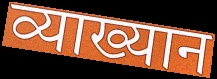
व्याख्यान